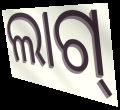
ଲାଗ୍